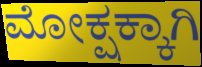
ಮೋಕ್ಷಕ್ಕಾಗಿ